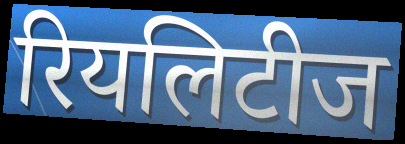
रियलिटीज